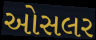
ઓસલર